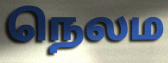
நெலம